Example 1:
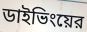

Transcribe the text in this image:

ডাইভিংয়ের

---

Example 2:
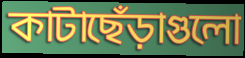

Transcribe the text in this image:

কাটাছেঁড়াগুলো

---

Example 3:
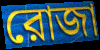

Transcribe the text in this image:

রোজা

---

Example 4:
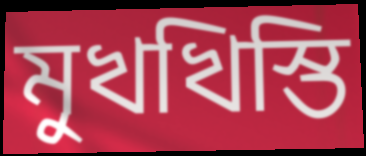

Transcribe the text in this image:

মুখখিস্তি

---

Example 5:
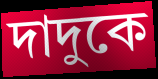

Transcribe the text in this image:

দাদুকে